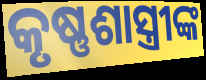
କୃଷ୍ଣଶାସ୍ତ୍ରୀଙ୍କ